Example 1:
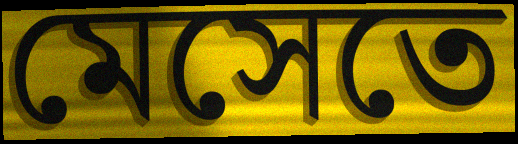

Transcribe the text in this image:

মেসেতে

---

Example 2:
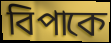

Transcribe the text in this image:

বিপাকে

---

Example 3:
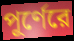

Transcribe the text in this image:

পূর্ণেরে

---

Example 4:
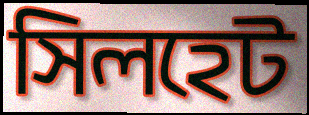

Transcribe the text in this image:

সিলহেট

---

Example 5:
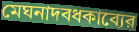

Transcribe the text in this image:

মেঘনাদবধকাব্যের